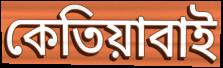
কেতিয়াবাই